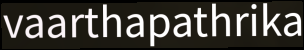
vaarthapathrika